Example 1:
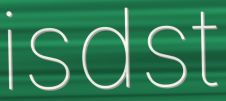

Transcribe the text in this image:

isdst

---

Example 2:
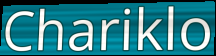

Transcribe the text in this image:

Chariklo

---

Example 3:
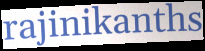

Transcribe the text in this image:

rajinikanths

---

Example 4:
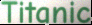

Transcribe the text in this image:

Titanic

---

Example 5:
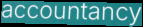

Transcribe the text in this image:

accountancy